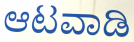
ಆಟವಾಡಿ